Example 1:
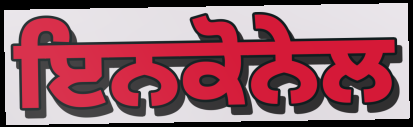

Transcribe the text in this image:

ਇਨਕੋਨੇਲ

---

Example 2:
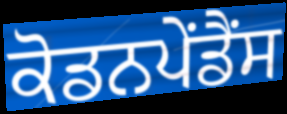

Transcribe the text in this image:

ਕੋਡਨਪੇਂਡੈਂਸ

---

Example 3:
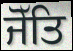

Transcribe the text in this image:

ਜੋੱਤਿ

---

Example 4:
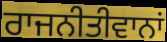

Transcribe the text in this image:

ਰਾਜਨੀਤੀਵਾਨਾਂ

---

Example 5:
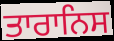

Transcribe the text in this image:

ਤਾਰਾਨਿਸ